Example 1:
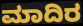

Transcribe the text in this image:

ಮಾದಿರ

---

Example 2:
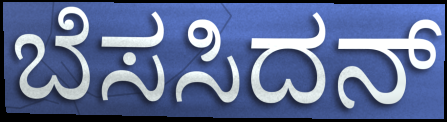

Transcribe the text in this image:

ಬೆಸಸಿದನ್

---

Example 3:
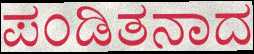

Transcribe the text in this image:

ಪಂಡಿತನಾದ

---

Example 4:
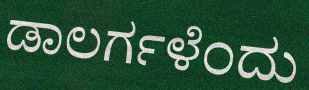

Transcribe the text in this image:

ಡಾಲರ್ಗಳೆಂದು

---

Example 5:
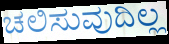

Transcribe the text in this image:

ಚಲಿಸುವುದಿಲ್ಲ